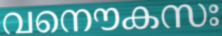
വനൌകസഃ